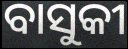
ବାସୁକୀ